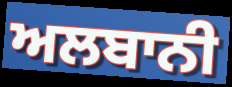
ਅਲਬਾਨੀ